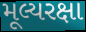
મૂલ્યરક્ષા